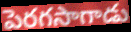
పెరగసాగాడు